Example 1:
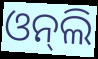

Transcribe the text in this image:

ଓନ୍‍ଲି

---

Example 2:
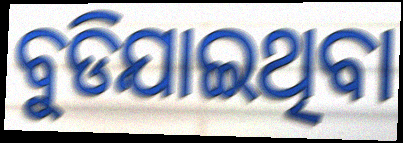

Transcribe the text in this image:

ବୁଡିଯାଇଥିବା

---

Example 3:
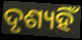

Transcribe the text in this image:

ଦୃଶ୍ୟହିଁ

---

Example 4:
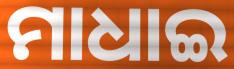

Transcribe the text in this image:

ମାଧାଇ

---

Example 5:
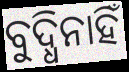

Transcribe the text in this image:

ବୁଦ୍ଧିନାହିଁ